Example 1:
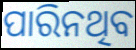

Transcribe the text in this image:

ପାରିନଥିବ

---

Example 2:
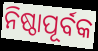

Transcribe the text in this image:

ନିଷ୍ଠାପୂର୍ବକ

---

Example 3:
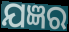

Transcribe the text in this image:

ଯଜ୍ଞର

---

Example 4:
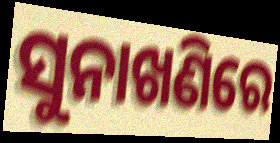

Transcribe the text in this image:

ସୁନାଖଣିରେ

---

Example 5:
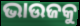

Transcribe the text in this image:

ଭାଉଜକୁ